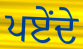
ਪਏਂਦੇ